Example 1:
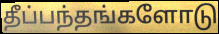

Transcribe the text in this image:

தீப்பந்தங்களோடு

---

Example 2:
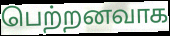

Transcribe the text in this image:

பெற்றனவாக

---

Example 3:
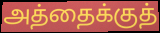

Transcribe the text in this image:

அத்தைக்குத்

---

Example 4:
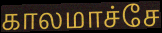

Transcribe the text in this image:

காலமாச்சே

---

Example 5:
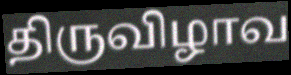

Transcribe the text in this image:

திருவிழாவ